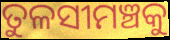
ତୁଳସୀମଞ୍ଚକୁ